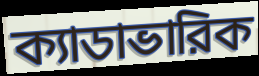
ক্যাডাভারিক